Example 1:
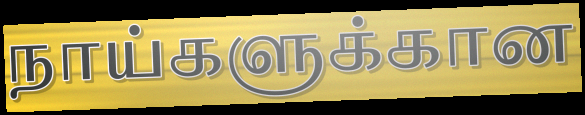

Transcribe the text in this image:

நாய்களுக்கான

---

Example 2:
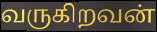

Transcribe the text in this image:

வருகிறவன்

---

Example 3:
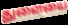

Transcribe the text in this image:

துளையை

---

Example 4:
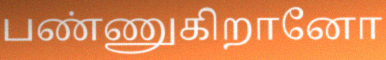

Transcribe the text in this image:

பண்ணுகிறானோ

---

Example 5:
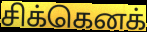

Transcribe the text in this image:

சிக்கெனக்